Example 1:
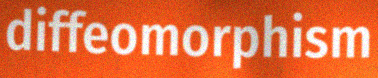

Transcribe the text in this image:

diffeomorphism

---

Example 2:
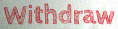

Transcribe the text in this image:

Withdraw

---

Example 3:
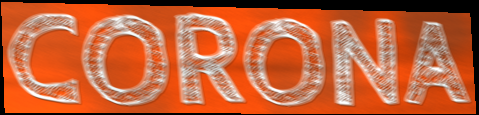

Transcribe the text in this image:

CORONA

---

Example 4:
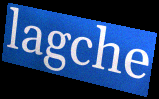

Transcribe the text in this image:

lagche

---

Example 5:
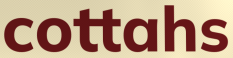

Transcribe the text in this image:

cottahs